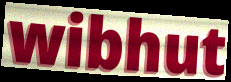
wibhut